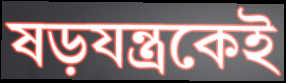
ষড়যন্ত্রকেই